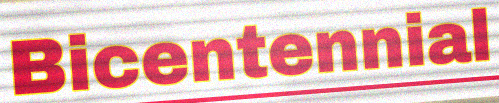
Bicentennial